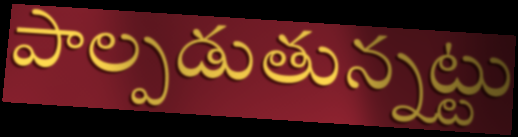
పాల్పడుతున్నట్టు